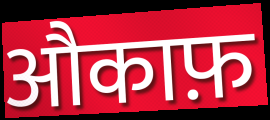
औकाफ़